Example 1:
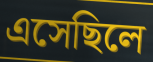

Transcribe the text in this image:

এসেছিলে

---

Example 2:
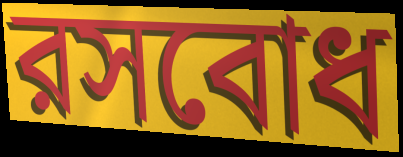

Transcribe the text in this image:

রসবোধ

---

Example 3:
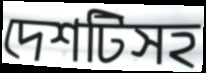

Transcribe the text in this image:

দেশটিসহ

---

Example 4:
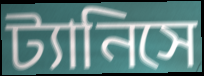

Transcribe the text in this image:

ট্যানিসে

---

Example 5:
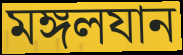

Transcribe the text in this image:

মঙ্গলযান